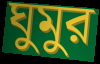
ঘুমুর